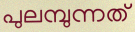
പുലമ്പുന്നത്